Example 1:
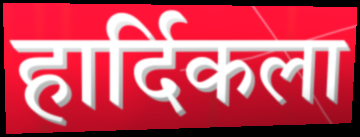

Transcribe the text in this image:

हार्दिकला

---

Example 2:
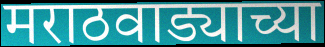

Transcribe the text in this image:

मराठवाड्याच्या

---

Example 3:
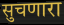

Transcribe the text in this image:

सुचणारा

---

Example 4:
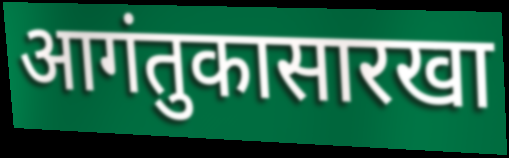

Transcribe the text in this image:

आगंतुकासारखा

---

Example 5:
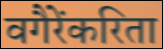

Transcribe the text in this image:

वगैरेंकरिता